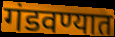
गंडवण्यात